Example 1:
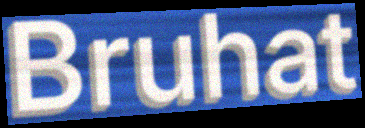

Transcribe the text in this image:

Bruhat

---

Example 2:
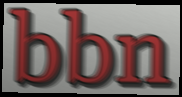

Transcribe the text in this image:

bbn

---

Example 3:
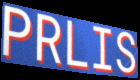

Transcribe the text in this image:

PRLIS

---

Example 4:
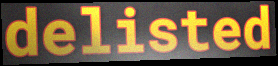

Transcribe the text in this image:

delisted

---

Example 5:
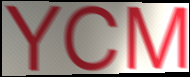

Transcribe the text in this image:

YCM